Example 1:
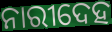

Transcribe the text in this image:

ନାରୀଦେହ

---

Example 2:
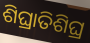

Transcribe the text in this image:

ଶିଘ୍ରାତିଶିଘ୍ର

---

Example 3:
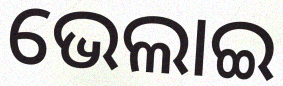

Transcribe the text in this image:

ଭେଲାଇ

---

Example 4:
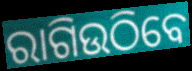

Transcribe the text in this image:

ରାଗିଉଠିବେ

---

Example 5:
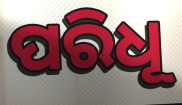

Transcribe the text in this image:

ପରିଧୂ